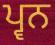
ਪ੍ਵਨ